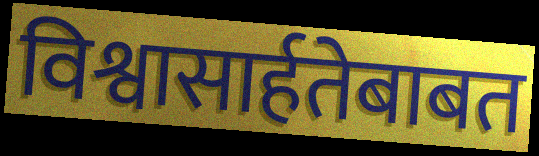
विश्वासार्हतेबाबत